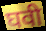
घवी